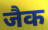
जैक